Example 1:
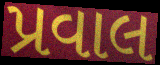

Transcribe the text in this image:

પ્રવાલ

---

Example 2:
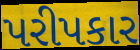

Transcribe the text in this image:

પરીપકાર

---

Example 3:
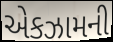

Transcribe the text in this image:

એકઝામની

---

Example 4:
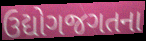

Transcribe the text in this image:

ઉદ્યોગજગતના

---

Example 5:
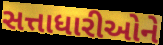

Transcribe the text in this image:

સત્તાધારીઓને